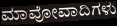
ಮಾವೋವಾದಿಗಳು